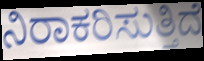
ನಿರಾಕರಿಸುತ್ತಿದೆ